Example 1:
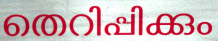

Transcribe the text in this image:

തെറിപ്പിക്കും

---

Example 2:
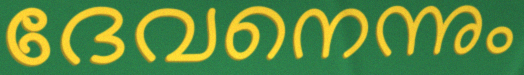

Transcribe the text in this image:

ദേവനെന്നും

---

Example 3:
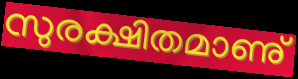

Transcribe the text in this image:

സുരക്ഷിതമാണു്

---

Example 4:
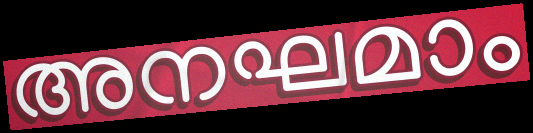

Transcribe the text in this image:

അനഘമാം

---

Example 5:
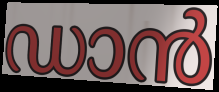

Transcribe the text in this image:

ഡാൻ